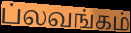
ப்லவங்கம்